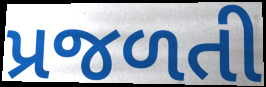
પ્રજળતી